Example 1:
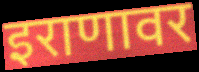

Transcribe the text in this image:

इराणावर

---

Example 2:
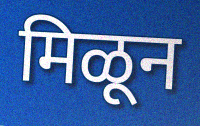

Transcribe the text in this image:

मिळून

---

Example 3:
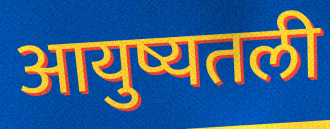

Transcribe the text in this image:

आयुष्यतली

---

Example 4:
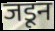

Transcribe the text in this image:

जडून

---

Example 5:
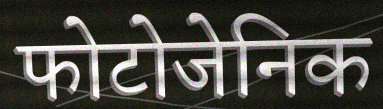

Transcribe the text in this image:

फोटोजेनिक